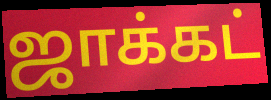
ஜாக்கட்